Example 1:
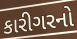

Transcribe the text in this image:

કારીગરનો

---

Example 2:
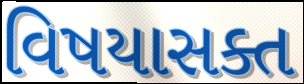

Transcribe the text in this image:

વિષયાસક્ત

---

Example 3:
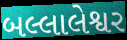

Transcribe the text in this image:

બલ્લાલેશ્વર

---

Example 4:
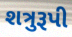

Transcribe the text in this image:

શત્રુરૂપી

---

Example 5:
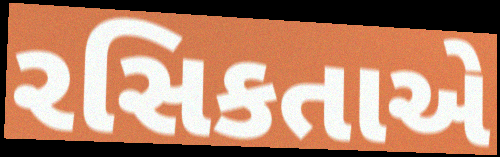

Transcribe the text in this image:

રસિકતાએ